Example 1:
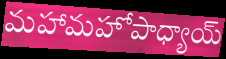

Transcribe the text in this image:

మహామహోపాధ్యాయ్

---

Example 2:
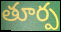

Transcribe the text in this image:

తూర్ప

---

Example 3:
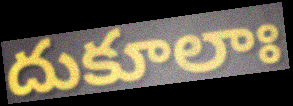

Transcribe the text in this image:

దుకూలాః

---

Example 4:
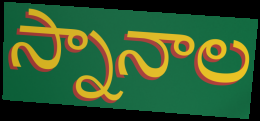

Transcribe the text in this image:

స్నానాల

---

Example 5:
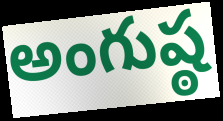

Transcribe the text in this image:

అంగుష్ఠ